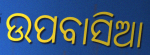
ଉପବାସିଆ